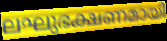
ലഘുഭക്ഷണമായി